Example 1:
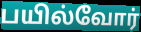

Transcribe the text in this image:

பயில்வோர்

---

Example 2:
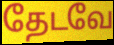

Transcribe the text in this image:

தேடவே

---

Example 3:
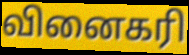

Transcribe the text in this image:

வினைகரி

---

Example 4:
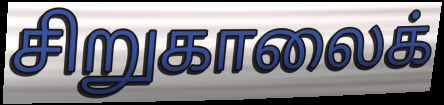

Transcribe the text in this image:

சிறுகாலைக்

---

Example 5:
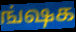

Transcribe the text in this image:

ங்ஷக